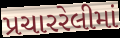
પ્રચારરેલીમાં